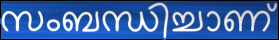
സംബന്ധിച്ചാണ്